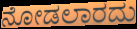
ನೋಡಲಾರದು